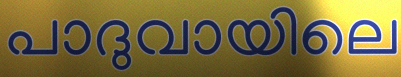
പാദുവായിലെ